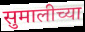
सुमालीच्या